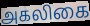
அகலிகை